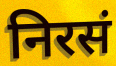
निरसं